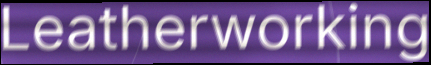
Leatherworking